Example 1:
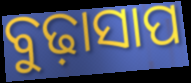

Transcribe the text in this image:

ବୁଢ଼ାସାପ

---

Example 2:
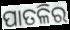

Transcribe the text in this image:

ପାତଳିର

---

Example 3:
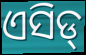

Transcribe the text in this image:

ଏସିଡ୍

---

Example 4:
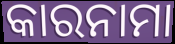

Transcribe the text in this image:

କାରନାମା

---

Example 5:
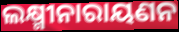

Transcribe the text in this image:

ଲକ୍ଷ୍ମୀନାରାୟଣନ